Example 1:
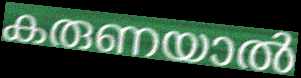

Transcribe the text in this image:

കരുണയാൽ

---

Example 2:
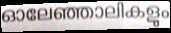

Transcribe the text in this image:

ഓലേഞ്ഞാലികളും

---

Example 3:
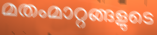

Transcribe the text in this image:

മതംമാറ്റങ്ങളുടെ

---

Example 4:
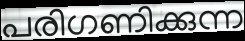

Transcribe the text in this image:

പരിഗണിക്കുന്ന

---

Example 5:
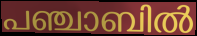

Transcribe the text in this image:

പഞ്ചാബിൽ